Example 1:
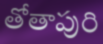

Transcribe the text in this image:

తోతాపురి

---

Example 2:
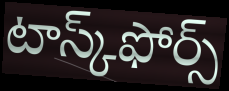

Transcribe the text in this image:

టాస్క్‌ఫోర్స్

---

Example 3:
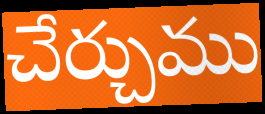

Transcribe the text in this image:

చేర్చుము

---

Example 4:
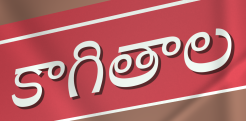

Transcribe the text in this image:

కాగితాల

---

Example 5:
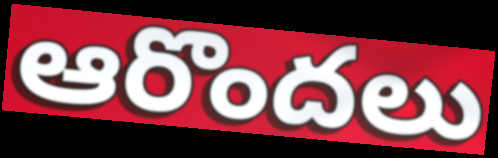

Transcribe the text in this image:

ఆరొందలు